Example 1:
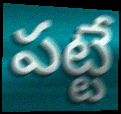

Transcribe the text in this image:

పట్టే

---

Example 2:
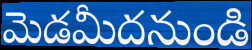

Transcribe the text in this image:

మెడమీదనుండి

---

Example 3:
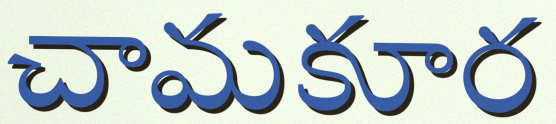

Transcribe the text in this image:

చామకూర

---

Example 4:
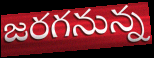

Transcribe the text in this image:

జరగనున్న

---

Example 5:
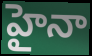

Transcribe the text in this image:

హైనా